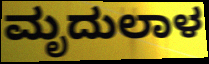
ಮೃದುಲಾಳ